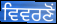
ਵਿਵਰਣੋਂ